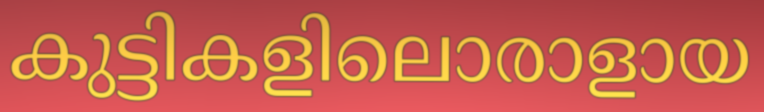
കുട്ടികളിലൊരാളായ